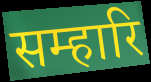
सम्हारि